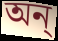
অন্